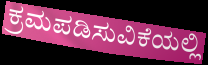
ಕ್ರಮಪಡಿಸುವಿಕೆಯಲ್ಲಿ